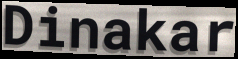
Dinakar